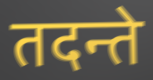
तदन्ते